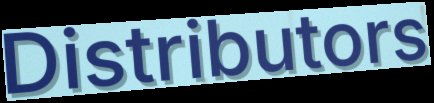
Distributors